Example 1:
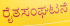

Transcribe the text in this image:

ರೈತಸಂಘಟನೆ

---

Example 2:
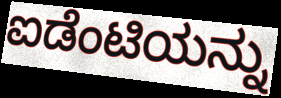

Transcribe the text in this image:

ಐಡೆಂಟಿಯನ್ನು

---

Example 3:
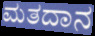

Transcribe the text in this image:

ಮತದಾನ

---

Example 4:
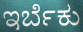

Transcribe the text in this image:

ಇರ್ಬೆಕು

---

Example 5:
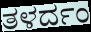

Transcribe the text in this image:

ತಳರ್ದಂ